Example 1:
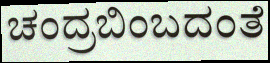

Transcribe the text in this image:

ಚಂದ್ರಬಿಂಬದಂತೆ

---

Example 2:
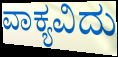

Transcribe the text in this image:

ವಾಕ್ಯವಿದು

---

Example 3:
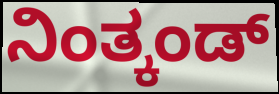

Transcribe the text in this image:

ನಿಂತ್ಕಂಡ್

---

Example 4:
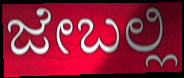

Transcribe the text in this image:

ಜೇಬಲ್ಲಿ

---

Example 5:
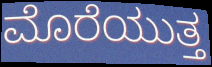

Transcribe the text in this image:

ಮೊರೆಯುತ್ತ